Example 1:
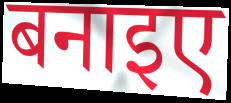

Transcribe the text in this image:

बनाइए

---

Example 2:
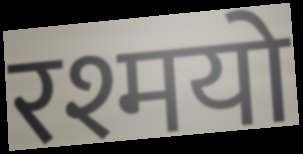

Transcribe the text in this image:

रश्मयो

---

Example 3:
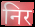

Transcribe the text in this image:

निर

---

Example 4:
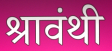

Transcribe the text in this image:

श्रावंथी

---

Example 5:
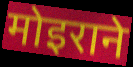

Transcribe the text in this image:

मोइराने